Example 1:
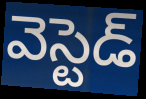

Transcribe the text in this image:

వెస్టెడ్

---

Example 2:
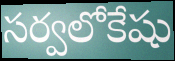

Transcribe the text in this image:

సర్వలోకేషు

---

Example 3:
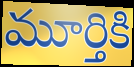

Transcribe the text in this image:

మూర్తికి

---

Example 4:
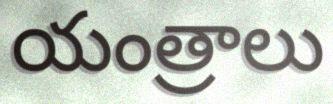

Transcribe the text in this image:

యంత్రాలు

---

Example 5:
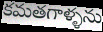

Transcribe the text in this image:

కమతగాళ్ళను